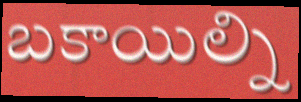
బకాయిల్ని